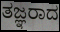
ತಜ್ಞರಾದ